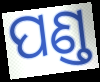
ପଣ୍ଡ